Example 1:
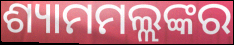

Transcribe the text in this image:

ଶ୍ୟାମମଲ୍ଲଙ୍କର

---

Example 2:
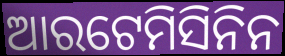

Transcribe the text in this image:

ଆରଟେମିସିନିନ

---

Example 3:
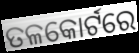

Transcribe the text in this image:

ତଳକୋର୍ଟରେ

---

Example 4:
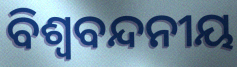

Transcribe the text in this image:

ବିଶ୍ୱବନ୍ଦନୀୟ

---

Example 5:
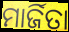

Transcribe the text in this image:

ମାର୍ଜିତା